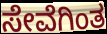
ಸೇವೆಗಿಂತ